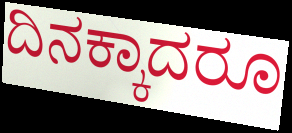
ದಿನಕ್ಕಾದರೂ